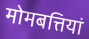
मोमबत्तियां